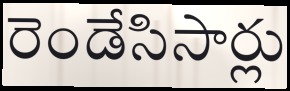
రెండేసిసార్లు